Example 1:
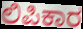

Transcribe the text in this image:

ಲಿಪಿಕಾರ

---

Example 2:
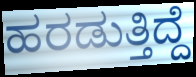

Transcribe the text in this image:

ಹರಡುತ್ತಿದ್ದೆ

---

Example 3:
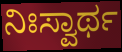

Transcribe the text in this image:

ನಿಃಸ್ವಾರ್ಥ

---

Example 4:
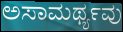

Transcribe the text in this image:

ಅಸಾಮರ್ಥ್ಯವು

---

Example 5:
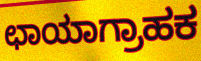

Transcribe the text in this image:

ಛಾಯಾಗ್ರಾಹಕ